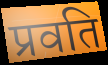
प्रवति